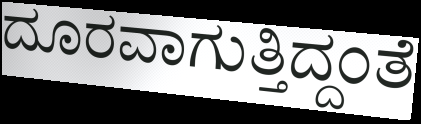
ದೂರವಾಗುತ್ತಿದ್ದಂತೆ